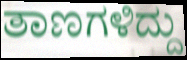
ತಾಣಗಳಿದ್ದು